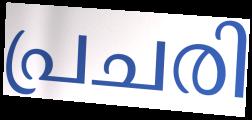
പ്രചരി